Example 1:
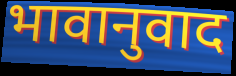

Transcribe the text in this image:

भावानुवाद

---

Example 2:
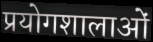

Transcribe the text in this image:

प्रयोगशालाओं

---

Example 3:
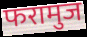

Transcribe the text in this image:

फरामुज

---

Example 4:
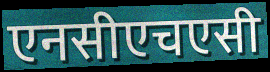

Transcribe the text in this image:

एनसीएचएसी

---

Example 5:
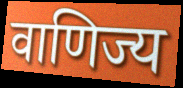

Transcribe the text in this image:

वाणिज्य